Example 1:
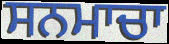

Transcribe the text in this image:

ਸਨਮਾਚਾ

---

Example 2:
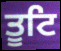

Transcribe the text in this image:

ਤੂਟਿ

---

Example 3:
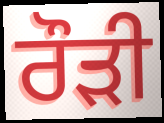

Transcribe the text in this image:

ਰੌੜੀ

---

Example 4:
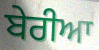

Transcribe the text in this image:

ਬੇਰੀਆ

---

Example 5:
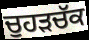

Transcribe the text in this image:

ਚੁਹੜਚੱਕ